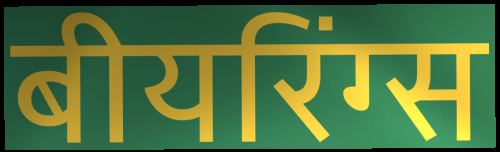
बीयरिंग्स